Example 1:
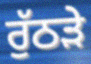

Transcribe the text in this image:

ਰੁੱਠੜੇ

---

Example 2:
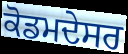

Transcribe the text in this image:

ਕੋਡਮਦੇਸਰ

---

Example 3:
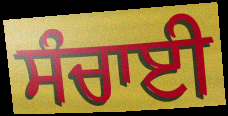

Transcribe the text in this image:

ਸੰਚਾਈ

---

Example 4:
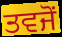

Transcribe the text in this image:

ਤਵਜੋਂ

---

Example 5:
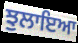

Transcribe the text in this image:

ਝੁਲਾਇਆ